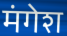
मंगेश